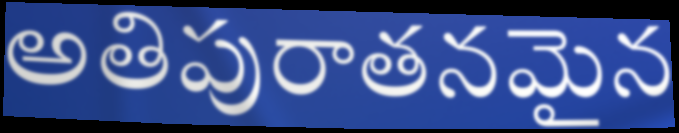
అతిపురాతనమైన